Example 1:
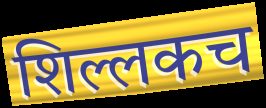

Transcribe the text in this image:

शिल्लकच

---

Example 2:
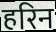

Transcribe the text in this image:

हरिन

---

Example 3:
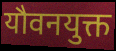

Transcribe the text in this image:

यौवनयुक्त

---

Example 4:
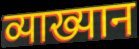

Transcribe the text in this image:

व्याख्यान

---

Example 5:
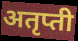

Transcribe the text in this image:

अतृप्ती